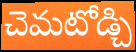
చెమటోడ్చి